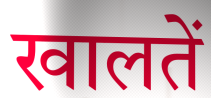
खालतें